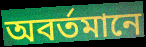
অবর্তমানে